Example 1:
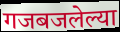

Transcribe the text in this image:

गजबजलेल्या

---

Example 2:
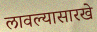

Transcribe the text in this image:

लावल्यासारखे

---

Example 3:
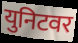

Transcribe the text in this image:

युनिटवर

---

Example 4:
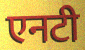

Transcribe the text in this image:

एनटी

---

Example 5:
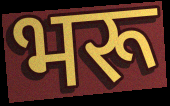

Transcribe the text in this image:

भरू